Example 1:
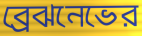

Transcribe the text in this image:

ব্রেঝনেভের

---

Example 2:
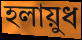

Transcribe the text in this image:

হলায়ুধ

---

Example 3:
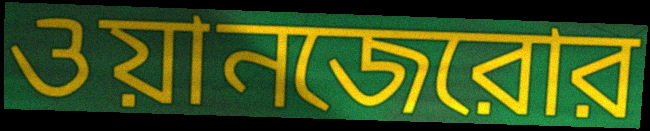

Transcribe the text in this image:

ওয়ানজেরোর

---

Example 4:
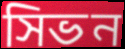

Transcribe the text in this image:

সিভন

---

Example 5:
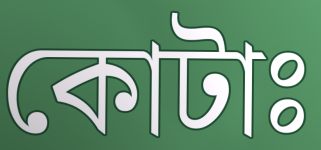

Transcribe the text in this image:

কোটাঃ